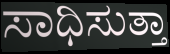
ಸಾಧಿಸುತ್ತಾ